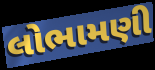
લોભામણી